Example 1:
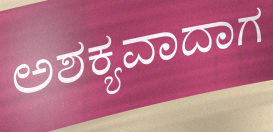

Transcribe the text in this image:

ಅಶಕ್ಯವಾದಾಗ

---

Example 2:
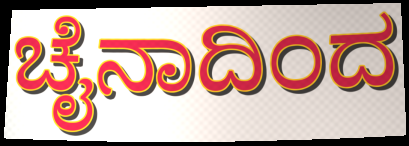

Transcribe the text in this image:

ಚೈನಾದಿಂದ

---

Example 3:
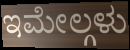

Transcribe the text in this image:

ಇಮೇಲ್ಗಳು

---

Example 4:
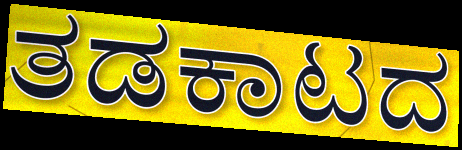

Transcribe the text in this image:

ತಡಕಾಟದ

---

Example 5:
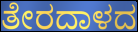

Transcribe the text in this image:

ತೇರದಾಳದ